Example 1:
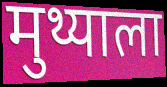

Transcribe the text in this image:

मुथ्याला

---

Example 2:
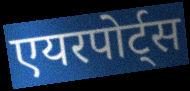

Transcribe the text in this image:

एयरपोर्ट्स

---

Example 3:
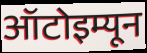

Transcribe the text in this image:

ऑटोइम्‍यून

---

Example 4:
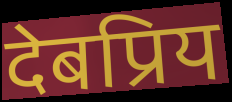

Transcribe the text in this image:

देबप्रिय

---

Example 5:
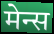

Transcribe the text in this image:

मेन्स